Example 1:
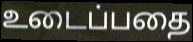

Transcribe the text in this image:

உடைப்பதை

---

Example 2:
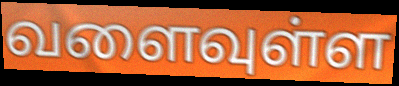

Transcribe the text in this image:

வளைவுள்ள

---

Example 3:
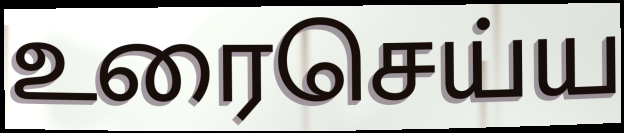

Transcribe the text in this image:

உரைசெய்ய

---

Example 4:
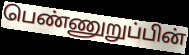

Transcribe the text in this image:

பெண்ணுறுப்பின்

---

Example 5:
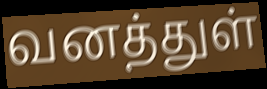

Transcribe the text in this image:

வனத்துள்